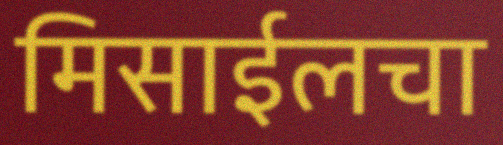
मिसाईलचा